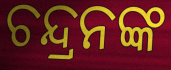
ଚନ୍ଦ୍ରନଙ୍କ